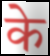
के